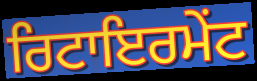
ਰਿਟਾਇਰਮੇਂਟ